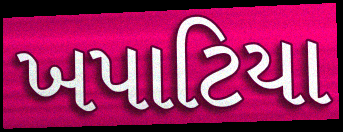
ખપાટિયા